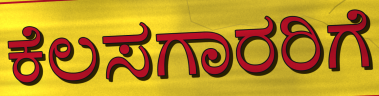
ಕೆಲಸಗಾರರಿಗೆ